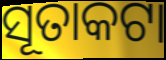
ସୂତାକଟା